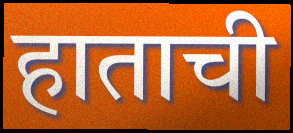
हाताची